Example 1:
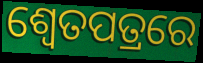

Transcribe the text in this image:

ଶ୍ୱେତପତ୍ରରେ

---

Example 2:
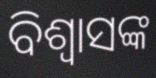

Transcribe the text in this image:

ବିଶ୍ୱାସଙ୍କ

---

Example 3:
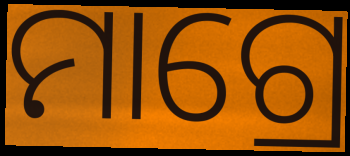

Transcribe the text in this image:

ମାଗ୍ରେ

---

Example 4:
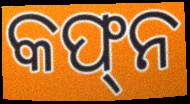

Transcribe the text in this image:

କଫ୍‌ନ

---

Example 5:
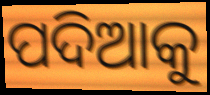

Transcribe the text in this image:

ପଦିଆକୁ